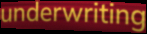
underwriting